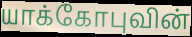
யாக்கோபுவின்